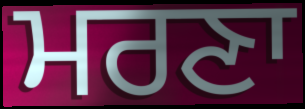
ਮਰਣਾ